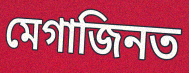
মেগাজিনত